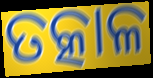
ତତ୍କାଳ